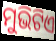
ମୁଭିଟିଏ